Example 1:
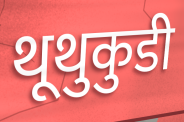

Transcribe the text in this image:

थूथुकुडी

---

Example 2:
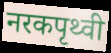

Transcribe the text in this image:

नरकपृथ्वी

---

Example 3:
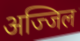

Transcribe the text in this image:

अज्जिल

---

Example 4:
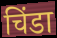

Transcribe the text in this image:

चिंडा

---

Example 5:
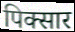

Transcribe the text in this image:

पिक्सार